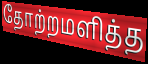
தோற்றமளித்த